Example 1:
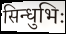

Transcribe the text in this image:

सिन्धुभिः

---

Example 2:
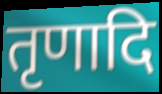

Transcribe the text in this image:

तृणादि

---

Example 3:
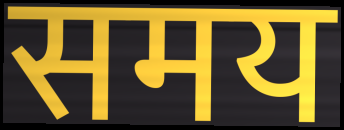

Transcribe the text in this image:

समय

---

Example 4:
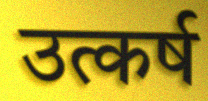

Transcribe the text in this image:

उत्कर्ष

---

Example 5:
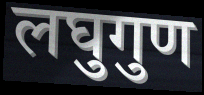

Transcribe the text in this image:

लघुगुण